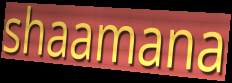
shaamana